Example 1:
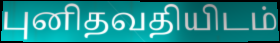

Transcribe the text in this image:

புனிதவதியிடம்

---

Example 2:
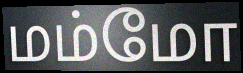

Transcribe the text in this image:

மம்மோ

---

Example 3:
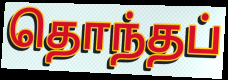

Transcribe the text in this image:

தொந்தப்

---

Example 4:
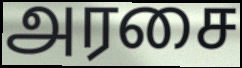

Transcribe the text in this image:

அரசை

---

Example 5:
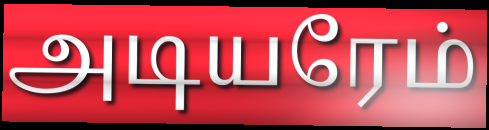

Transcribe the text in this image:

அடியரேம்